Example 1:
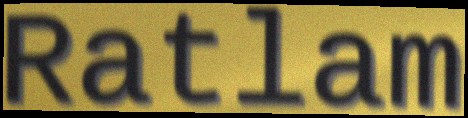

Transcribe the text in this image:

Ratlam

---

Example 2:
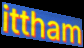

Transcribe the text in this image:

ittham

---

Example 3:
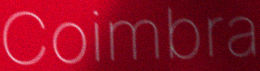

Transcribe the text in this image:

Coimbra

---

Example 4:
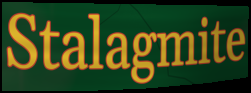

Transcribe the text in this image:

Stalagmite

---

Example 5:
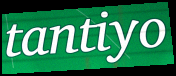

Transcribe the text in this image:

tantiyo